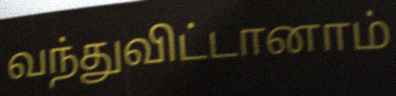
வந்துவிட்டானாம்